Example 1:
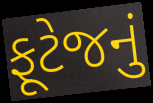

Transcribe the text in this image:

ફૂટેજનું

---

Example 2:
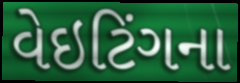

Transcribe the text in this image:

વેઇટિંગના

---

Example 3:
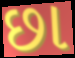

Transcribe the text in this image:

છા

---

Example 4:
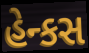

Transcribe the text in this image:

હેન્કસ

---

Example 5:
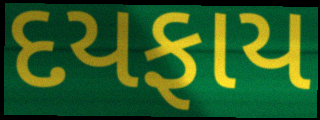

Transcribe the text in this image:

દયફાય